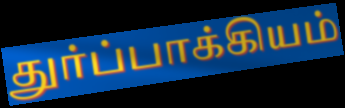
துர்ப்பாக்கியம்